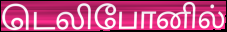
டெலிபோனில்